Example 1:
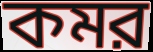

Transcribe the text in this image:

কমর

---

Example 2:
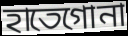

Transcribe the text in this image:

হাতেগোনা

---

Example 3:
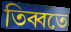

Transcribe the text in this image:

তিব্বতে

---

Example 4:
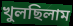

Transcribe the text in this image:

খুলছিলাম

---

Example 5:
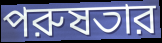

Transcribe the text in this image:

পরুষতার